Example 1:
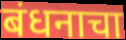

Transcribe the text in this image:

बंधनाचा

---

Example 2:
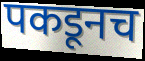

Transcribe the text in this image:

पकडूनच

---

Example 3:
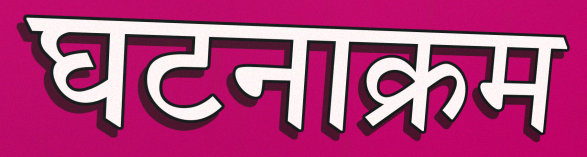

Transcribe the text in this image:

घटनाक्रम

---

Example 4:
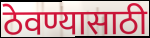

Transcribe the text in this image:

ठेवण्यासाठी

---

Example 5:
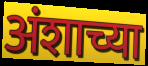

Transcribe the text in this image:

अंशाच्या